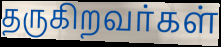
தருகிறவர்கள்